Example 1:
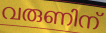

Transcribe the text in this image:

വരുണിന്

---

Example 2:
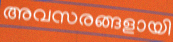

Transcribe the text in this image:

അവസരങ്ങളായി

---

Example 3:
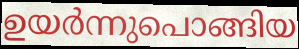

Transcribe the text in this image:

ഉയർന്നുപൊങ്ങിയ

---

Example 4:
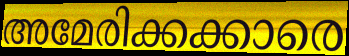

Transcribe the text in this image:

അമേരിക്കക്കാരെ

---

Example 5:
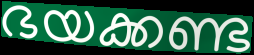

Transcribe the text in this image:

ഭയക്കണ്ട